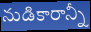
నుడికారాన్నీ